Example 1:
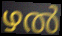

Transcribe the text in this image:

ഴൽ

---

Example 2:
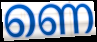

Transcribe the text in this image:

ണെ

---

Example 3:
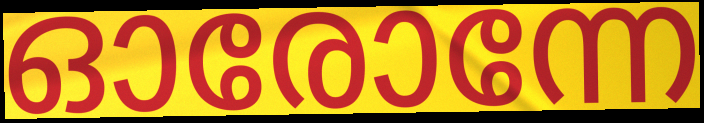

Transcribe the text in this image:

ഓരോന്നേ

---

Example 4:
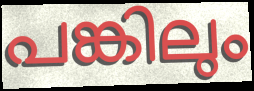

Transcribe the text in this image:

പങ്കിലും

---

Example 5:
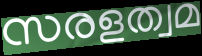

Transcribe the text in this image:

സരളത്വമ